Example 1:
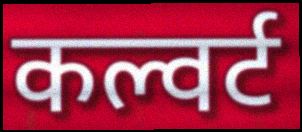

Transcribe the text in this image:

कल्वर्ट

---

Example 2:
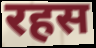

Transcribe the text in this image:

रहस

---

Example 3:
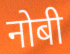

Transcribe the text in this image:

नोबी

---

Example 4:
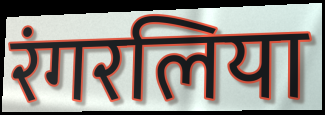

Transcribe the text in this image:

रंगरलिया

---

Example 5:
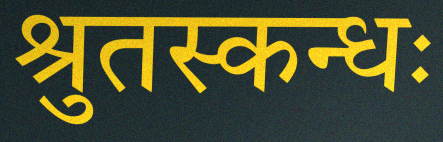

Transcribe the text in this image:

श्रुतस्कन्धः